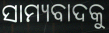
ସାମ୍ୟବାଦକୁ